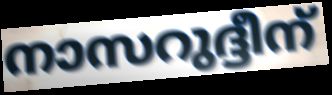
നാസറുദ്ദീന്